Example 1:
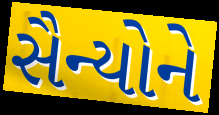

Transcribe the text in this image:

સૈન્યોને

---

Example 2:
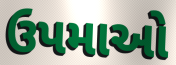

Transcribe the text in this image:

ઉપમાઓ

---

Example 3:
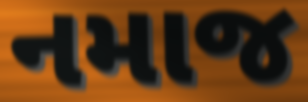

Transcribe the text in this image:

નમાજ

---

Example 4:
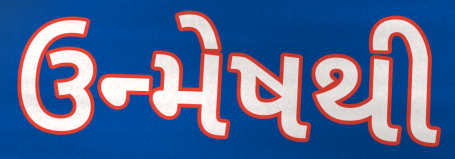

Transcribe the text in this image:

ઉન્મેષથી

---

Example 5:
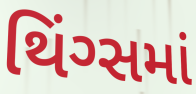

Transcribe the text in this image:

થિંગ્સમાં